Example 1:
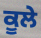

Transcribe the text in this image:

ਕੂਲੇ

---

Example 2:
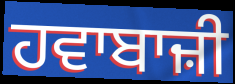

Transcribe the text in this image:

ਹਵਾਬਾਜ਼ੀ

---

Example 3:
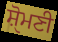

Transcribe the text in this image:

ਸ਼ੑੋਮਣੀ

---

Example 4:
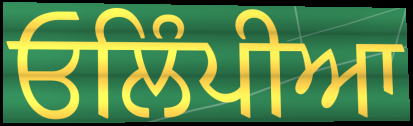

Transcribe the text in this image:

ਓਲਿੰਪੀਆ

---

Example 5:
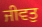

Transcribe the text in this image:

ਜੀਵਤੁ